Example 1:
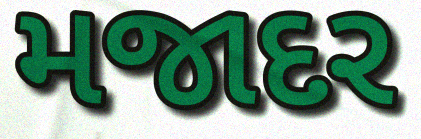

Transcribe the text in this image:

મજાદર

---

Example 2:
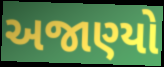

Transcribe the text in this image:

અજાણ્યો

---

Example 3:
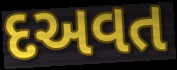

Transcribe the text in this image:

દઅવત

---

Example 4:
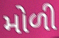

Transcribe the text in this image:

મોળી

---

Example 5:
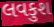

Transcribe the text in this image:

લવકુશ